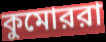
কুমোররা